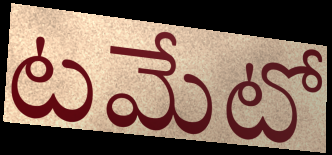
టమేటో